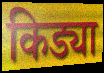
किड्या